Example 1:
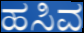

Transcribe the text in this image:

ಹಸಿವ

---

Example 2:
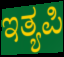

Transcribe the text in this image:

ಇತ್ಯಪಿ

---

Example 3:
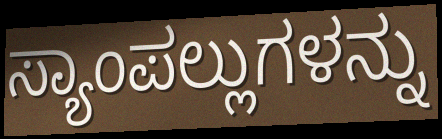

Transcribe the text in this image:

ಸ್ಯಾಂಪಲ್ಲುಗಳನ್ನು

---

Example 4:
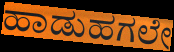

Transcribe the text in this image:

ಹಾಡುಹಗಲೇ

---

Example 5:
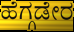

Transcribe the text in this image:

ಹೆಗ್ಗಡೇರ